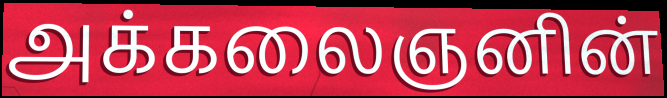
அக்கலைஞனின்